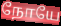
நோயே